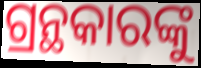
ଗ୍ରନ୍ଥକାରଙ୍କୁ